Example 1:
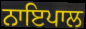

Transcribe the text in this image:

ਨਾਇਪਾਲ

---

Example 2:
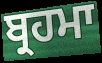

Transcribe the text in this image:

ਬ੍ਰਹਮਾ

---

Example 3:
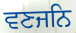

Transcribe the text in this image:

ਵਣਜਨਿ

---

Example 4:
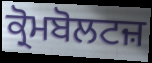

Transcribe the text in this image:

ਕ੍ਰੋਮਬੋਲਟਜ਼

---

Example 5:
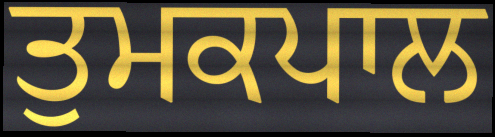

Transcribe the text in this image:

ਤੁਮਕਪਾਲ